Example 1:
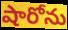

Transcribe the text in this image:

షారోను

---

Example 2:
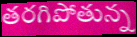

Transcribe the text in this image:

తరగిపోతున్న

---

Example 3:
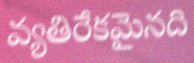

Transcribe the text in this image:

వ్యతిరేకమైనది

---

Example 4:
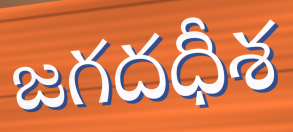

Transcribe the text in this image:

జగదధీశ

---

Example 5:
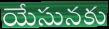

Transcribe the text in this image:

యేసునకు